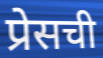
प्रेसची